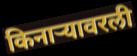
किनाऱ्यावरली